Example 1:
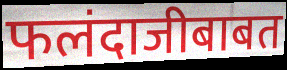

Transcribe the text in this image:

फलंदाजीबाबत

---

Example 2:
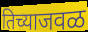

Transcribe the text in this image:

तिच्याजवळ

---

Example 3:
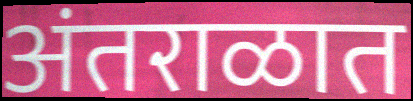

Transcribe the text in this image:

अंतराळात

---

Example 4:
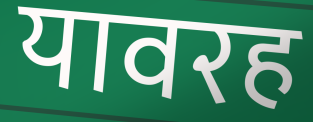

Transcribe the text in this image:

यावरह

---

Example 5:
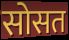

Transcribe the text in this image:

सोसत